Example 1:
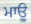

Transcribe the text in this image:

ਮਾਊ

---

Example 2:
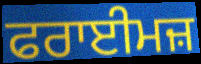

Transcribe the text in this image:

ਫਰਾਈਮਜ਼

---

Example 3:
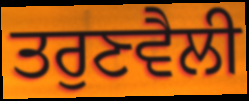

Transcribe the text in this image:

ਤਰੁਣਵੈਲੀ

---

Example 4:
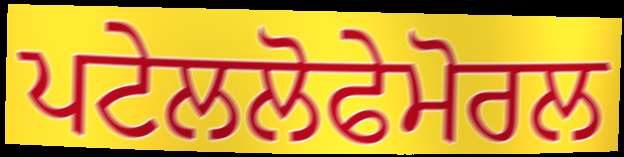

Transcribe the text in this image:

ਪਟੇਲਲੋਫੇਮੋਰਲ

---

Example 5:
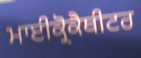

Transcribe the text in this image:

ਮਾਈਕ੍ਰੋਕੈਥੀਟਰ